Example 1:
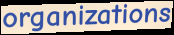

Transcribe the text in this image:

organizations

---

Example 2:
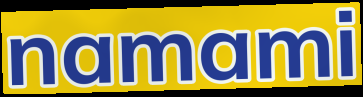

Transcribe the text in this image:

namami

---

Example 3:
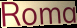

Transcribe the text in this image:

Roma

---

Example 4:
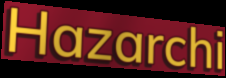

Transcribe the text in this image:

Hazarchi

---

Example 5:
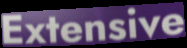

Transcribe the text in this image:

Extensive